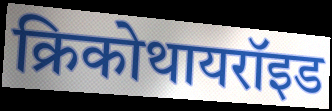
क्रिकोथायरॉइड